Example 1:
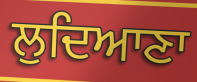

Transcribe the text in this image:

ਲੁਦਿਆਣਾ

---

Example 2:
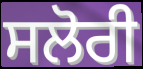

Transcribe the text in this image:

ਸਲੋਰੀ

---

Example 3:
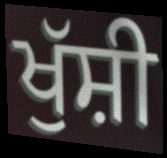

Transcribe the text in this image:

ਖੁੱਸ਼ੀ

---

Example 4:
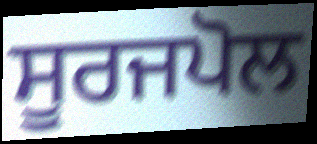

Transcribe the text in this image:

ਸੂਰਜਪੋਲ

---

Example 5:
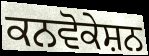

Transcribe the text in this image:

ਕਨਵੋਕੇਸ਼ਨ